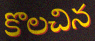
కొలచిన